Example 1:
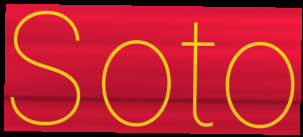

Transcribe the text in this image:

Soto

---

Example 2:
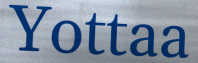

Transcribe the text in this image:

Yottaa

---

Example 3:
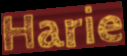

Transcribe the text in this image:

Harie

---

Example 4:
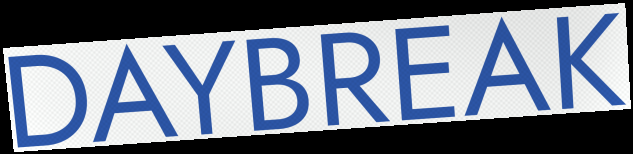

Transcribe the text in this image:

DAYBREAK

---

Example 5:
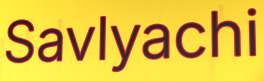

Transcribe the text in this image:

Savlyachi